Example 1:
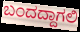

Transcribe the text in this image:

ಬಂದದ್ದಾಗಲಿ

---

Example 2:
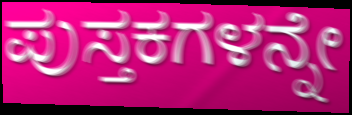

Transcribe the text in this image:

ಪುಸ್ತಕಗಳನ್ನೇ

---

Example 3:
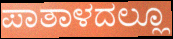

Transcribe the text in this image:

ಪಾತಾಳದಲ್ಲೂ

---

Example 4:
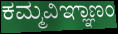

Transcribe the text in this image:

ಕಮ್ಮವಿಞ್ಞಾಣಂ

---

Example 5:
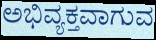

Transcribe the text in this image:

ಅಭಿವ್ಯಕ್ತವಾಗುವ